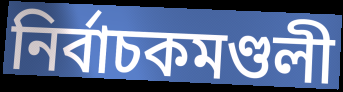
নির্বাচকমণ্ডলী